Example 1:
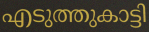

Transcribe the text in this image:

എടുത്തുകാട്ടി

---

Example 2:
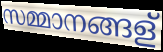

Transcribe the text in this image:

സമ്മാനങ്ങള്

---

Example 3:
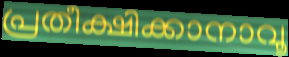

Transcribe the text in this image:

പ്രതീക്ഷിക്കാനാവൂ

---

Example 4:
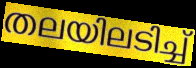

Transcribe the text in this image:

തലയിലടിച്ച്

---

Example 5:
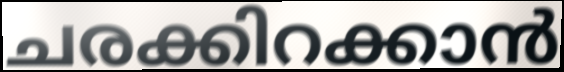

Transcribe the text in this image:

ചരക്കിറക്കാൻ